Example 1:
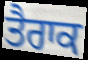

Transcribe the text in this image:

ਤੈਰਾਕ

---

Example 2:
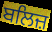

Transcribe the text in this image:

ਬਲਿਜ਼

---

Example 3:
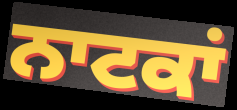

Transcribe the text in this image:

ਨਾਟਕਾਂ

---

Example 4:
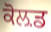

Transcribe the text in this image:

ਕੋਲ਼ਡ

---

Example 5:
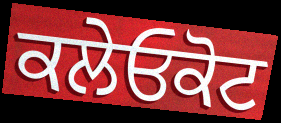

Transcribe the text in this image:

ਕਲੇਓਕੋਟ